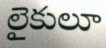
లైకులూ